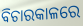
ବିଚାରକାଳରେ